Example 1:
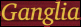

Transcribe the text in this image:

Ganglia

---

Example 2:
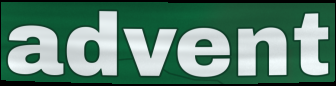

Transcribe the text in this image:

advent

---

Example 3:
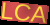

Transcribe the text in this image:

LCA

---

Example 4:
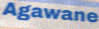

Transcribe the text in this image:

Agawane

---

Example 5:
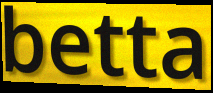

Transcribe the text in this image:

betta